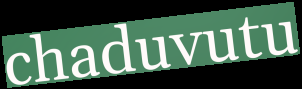
chaduvutu